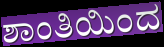
ಶಾಂತಿಯಿಂದ